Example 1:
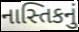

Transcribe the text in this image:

નાસ્તિકનું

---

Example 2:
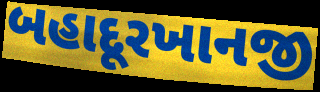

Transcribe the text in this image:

બહાદૂરખાનજી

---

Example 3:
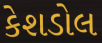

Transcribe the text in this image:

કેશડોલ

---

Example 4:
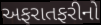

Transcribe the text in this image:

અફરાતફરીનો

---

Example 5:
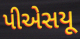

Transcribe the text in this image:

પીએસયૂ